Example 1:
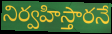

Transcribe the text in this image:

నిర్వహిస్తారనే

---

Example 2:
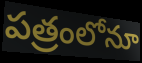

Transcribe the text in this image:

పత్రంలోనూ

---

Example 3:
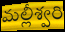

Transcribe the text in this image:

మల్లీశ్వరి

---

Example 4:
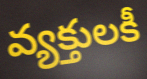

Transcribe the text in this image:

వ్యక్తులకీ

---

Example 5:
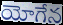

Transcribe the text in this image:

యోగేన